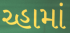
ચ્હામાં